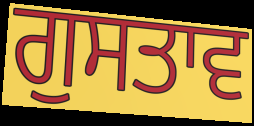
ਗੁਸਤਾਵ